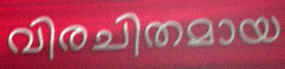
വിരചിതമായ